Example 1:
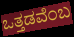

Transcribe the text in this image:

ಒತ್ತಡವೆಂಬ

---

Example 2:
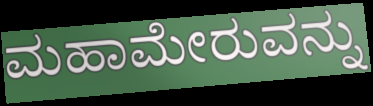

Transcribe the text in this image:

ಮಹಾಮೇರುವನ್ನು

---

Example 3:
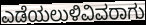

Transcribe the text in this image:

ಎಡೆಯಲುಳಿವಿವರಾಗು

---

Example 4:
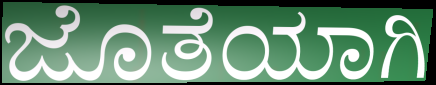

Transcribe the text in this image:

ಜೊತೆಯಾಗಿ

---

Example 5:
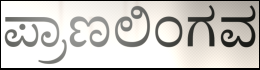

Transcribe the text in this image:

ಪ್ರಾಣಲಿಂಗವ